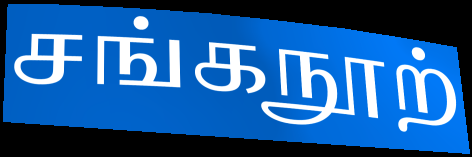
சங்கநூற்